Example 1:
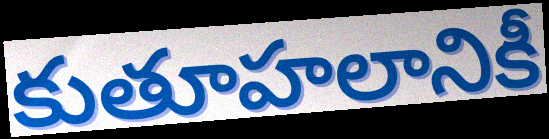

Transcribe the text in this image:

కుతూహలానికీ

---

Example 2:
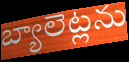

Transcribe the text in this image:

బ్యాలెట్లను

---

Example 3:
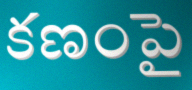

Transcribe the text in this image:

కణంపై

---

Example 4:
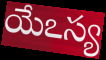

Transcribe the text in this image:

యేఽస్య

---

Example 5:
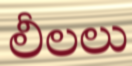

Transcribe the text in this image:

లీలలు